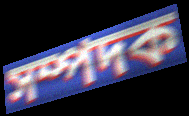
সম্পদক